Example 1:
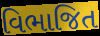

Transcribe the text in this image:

વિભાજિત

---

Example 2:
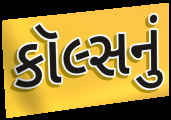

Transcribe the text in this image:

કૉલ્સનું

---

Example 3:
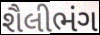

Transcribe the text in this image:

શૈલીભંગ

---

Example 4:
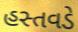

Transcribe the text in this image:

હસ્તવડે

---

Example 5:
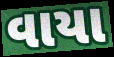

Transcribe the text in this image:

વાયા